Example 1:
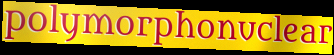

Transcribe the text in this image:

polymorphonuclear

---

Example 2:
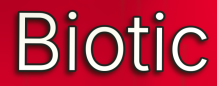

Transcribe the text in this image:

Biotic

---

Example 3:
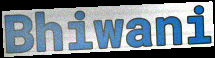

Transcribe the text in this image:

Bhiwani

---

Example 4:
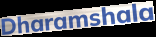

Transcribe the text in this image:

Dharamshala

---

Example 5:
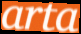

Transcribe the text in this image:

arta